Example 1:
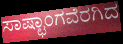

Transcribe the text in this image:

ಸಾಷ್ಟಾಂಗವೆರಗಿದ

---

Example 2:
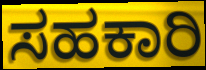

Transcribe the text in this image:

ಸಹಕಾರಿ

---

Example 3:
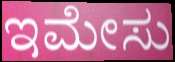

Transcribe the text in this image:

ಇಮೇಸು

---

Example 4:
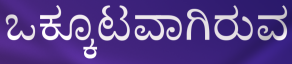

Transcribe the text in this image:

ಒಕ್ಕೂಟವಾಗಿರುವ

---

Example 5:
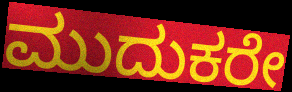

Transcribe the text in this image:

ಮುದುಕರೇ